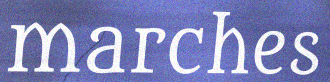
marches